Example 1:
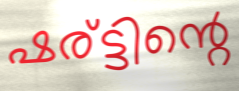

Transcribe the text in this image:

ഷര്ട്ടിന്റെ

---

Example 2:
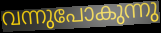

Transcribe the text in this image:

വന്നുപോകുന്നു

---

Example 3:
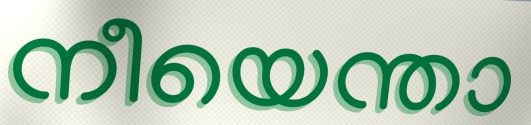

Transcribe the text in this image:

നീയെന്താ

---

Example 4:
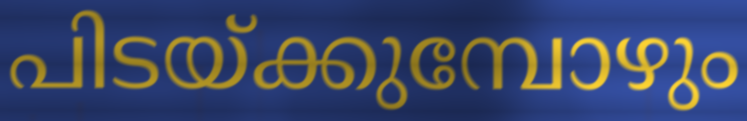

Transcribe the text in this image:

പിടയ്ക്കുമ്പോഴും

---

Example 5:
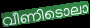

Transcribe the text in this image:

വീണിടൊലാ